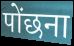
पोंछना